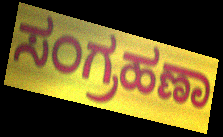
ಸಂಗ್ರಹಣಾ